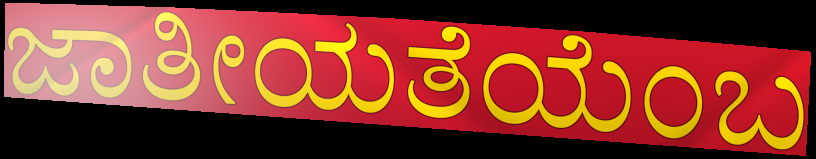
ಜಾತೀಯತೆಯೆಂಬ